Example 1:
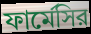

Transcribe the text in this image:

ফার্মেসির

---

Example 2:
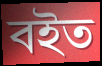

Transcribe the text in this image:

বইত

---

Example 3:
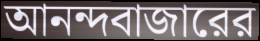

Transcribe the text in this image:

আনন্দবাজারের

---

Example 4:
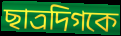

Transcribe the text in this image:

ছাত্রদিগকে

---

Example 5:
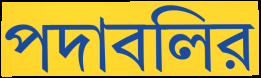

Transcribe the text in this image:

পদাবলির